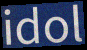
idol